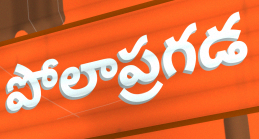
పోలాప్రగడ